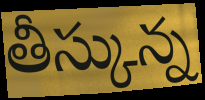
తీస్కున్న